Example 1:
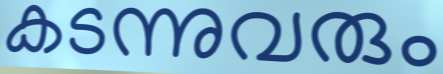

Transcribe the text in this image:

കടന്നുവരും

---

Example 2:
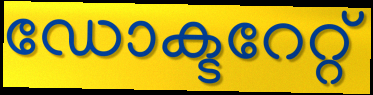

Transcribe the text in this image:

ഡോക്ടറേറ്റ്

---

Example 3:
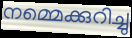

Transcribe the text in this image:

നമ്മെക്കുറിച്ചു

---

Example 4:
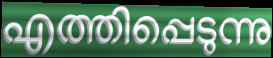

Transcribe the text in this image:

എത്തിപ്പെടുന്നു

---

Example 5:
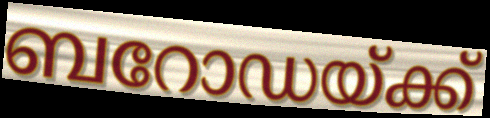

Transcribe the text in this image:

ബറോഡയ്ക്ക്